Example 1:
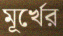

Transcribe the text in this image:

মূর্খের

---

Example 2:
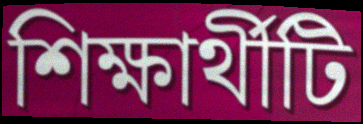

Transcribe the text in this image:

শিক্ষার্থীটি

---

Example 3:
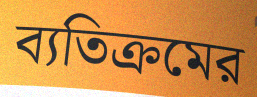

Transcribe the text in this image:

ব্যতিক্রমের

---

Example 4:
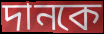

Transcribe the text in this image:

দানকে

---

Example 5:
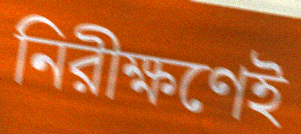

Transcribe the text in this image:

নিরীক্ষণেই